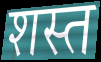
शस्त